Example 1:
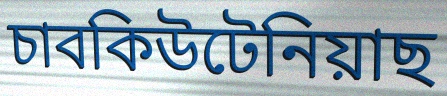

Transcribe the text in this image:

চাবকিউটেনিয়াছ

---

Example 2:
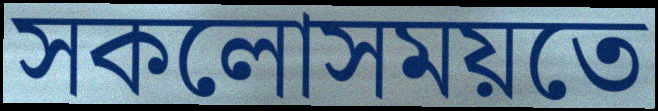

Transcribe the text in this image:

সকলোসময়তে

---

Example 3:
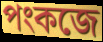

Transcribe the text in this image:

পংকজে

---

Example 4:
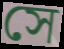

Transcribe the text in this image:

সে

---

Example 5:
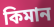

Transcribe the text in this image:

কিমান